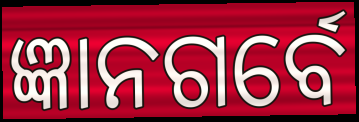
ଜ୍ଞାନଗର୍ବେ